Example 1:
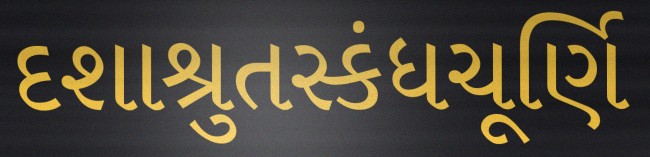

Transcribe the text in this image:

દશાશ્રુતસ્કંધચૂર્ણિ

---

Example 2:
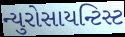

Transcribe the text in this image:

ન્યુરોસાયન્ટિસ્ટ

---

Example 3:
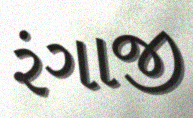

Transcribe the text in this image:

રંગાજી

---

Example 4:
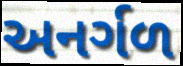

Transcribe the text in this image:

અનર્ગળ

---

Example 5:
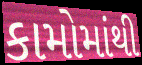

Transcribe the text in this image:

કામોમાંથી